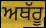
ਅਥੱਰੂ